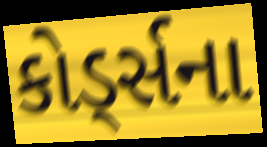
કોર્ડ્સના